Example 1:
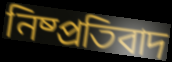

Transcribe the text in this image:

নিষ্প্রতিবাদ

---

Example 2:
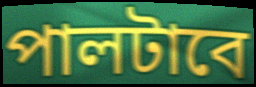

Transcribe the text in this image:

পালটাবে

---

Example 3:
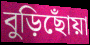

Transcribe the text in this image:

বুড়িছোঁয়া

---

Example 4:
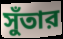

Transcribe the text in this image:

সুঁতার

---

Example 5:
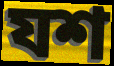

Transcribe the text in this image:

যশ